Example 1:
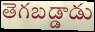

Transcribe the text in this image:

తెగబడ్డాడు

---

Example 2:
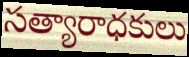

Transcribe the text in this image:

సత్యారాధకులు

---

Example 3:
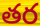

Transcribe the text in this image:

తర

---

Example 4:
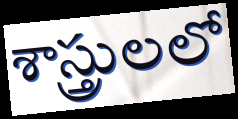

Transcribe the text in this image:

శాస్త్రులలో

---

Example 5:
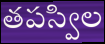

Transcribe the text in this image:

తపస్విల